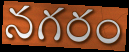
నగరం